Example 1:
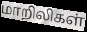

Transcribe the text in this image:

மாறிலிகள்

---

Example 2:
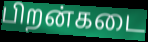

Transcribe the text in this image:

பிறன்கடை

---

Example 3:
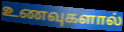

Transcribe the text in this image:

உணவுகளால்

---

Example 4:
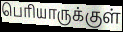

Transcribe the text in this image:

பெரியாருக்குள்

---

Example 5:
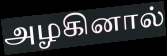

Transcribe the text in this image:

அழகினால்